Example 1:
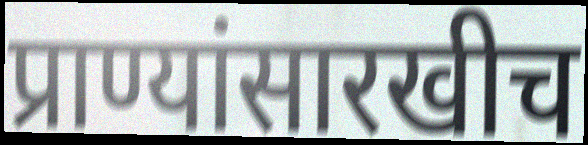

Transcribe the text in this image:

प्राण्यांसारखीच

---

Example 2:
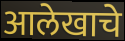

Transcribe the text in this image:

आलेखाचे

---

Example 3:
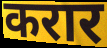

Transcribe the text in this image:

करार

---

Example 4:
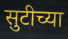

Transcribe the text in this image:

सुटीच्या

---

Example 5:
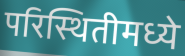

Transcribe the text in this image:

परिस्थितीमध्ये